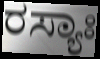
ರಸ್ಯಾಃ